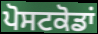
ਪੋਸਟਕੋਡਾਂ